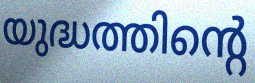
യുദ്ധത്തിന്റെ